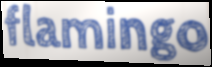
flamingo